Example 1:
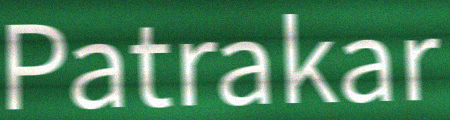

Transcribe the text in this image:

Patrakar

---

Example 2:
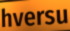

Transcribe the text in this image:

hversu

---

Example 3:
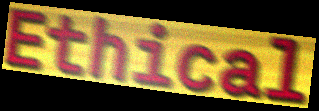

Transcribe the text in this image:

Ethical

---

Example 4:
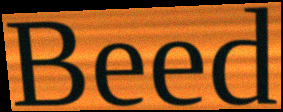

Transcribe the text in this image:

Beed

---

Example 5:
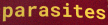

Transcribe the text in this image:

parasites